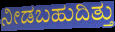
ನೀಡಬಹುದಿತ್ತು